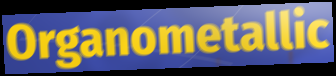
Organometallic